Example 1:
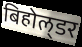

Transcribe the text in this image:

बिहोल्डर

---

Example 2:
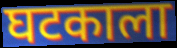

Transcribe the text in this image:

घटकाला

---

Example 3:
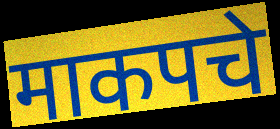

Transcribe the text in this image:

माकपचे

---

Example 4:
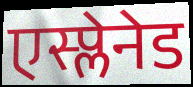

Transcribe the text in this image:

एस्प्लेनेड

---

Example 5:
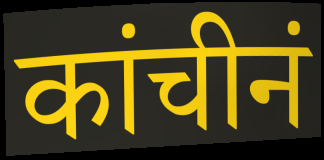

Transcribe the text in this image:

कांचीनं